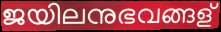
ജയിലനുഭവങ്ങള്